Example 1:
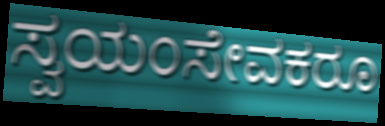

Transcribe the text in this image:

ಸ್ವಯಂಸೇವಕರೂ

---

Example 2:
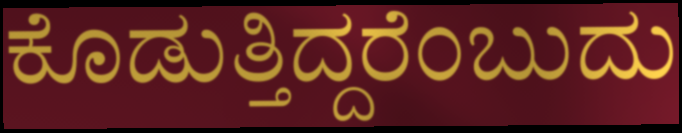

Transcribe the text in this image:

ಕೊಡುತ್ತಿದ್ದರೆಂಬುದು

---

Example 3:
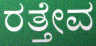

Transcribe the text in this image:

ರತ್ತೇವ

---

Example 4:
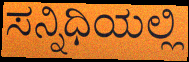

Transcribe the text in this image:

ಸನ್ನಿಧಿಯಲ್ಲಿ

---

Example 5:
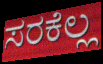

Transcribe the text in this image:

ಸರಕೆಲ್ಲ